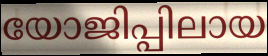
യോജിപ്പിലായ